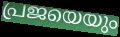
പ്രജയെയും